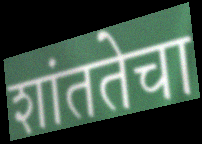
शांततेचा